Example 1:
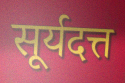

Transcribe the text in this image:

सूर्यदत्त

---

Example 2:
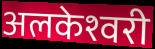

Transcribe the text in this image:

अलकेश्वरी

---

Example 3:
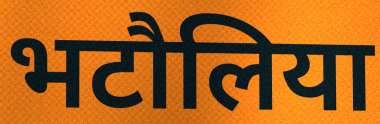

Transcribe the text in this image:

भटौलिया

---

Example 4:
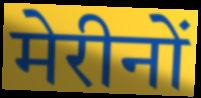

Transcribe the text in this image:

मेरीनों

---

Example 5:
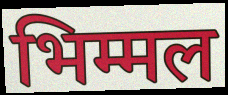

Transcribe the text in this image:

भिम्मल